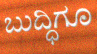
ಬುದ್ಧಿಗೂ